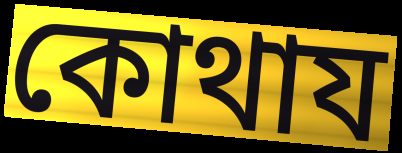
কোথায